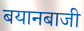
बयानबाजी